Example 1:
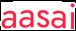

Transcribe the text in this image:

aasai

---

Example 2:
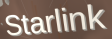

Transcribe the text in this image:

Starlink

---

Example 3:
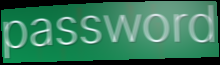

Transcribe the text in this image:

password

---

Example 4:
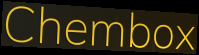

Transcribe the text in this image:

Chembox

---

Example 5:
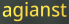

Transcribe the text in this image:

agianst